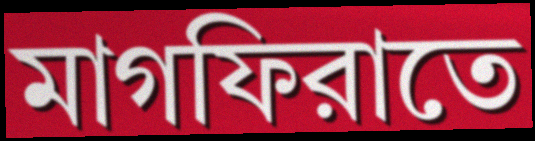
মাগফিরাতে